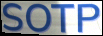
SOTP